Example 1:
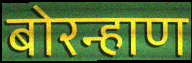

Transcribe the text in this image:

बोरन्हाण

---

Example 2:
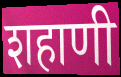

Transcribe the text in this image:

शहाणी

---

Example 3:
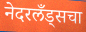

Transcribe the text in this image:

नेदरलँड्सचा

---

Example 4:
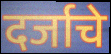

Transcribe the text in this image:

दर्जाचे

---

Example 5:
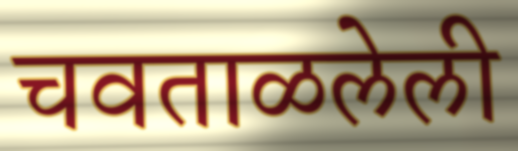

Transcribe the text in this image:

चवताळलेली